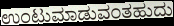
ಉಂಟುಮಾಡುವಂತಹುದು